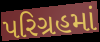
પરિગ્રહમાં